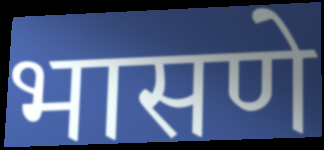
भासणे